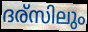
ദര്സിലും